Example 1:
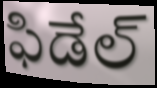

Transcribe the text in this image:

ఫిడేల్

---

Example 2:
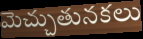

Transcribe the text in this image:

మెచ్చుతునకలు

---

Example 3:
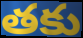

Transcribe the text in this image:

తకు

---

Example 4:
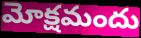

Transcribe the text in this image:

మోక్షమందు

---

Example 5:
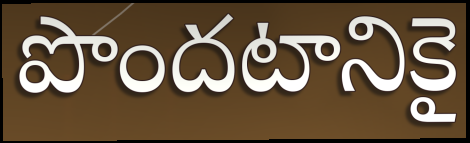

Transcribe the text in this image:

పొందటానికై